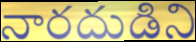
నారదుడిని